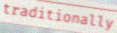
traditionally